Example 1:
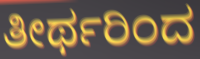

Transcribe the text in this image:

ತೀರ್ಥರಿಂದ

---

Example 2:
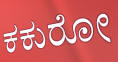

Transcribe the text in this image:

ಕಕುರೋ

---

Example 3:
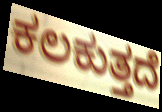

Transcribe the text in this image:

ಕಲಕುತ್ತದೆ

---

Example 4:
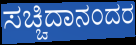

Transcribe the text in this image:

ಸಚ್ಚಿದಾನಂದರ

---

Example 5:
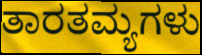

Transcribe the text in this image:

ತಾರತಮ್ಯಗಳು